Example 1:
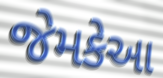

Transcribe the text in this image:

જેમકેઆ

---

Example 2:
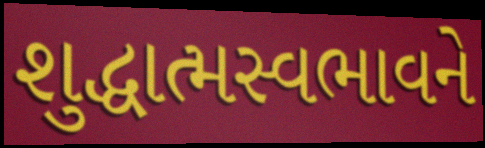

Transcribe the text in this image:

શુદ્ધાત્મસ્વભાવને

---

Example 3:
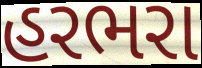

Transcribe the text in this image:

હરભરા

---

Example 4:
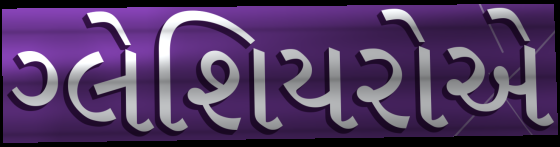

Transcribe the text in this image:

ગ્લેશિયરોએ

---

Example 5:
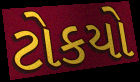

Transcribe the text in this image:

ટોકયો